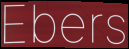
Ebers